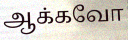
ஆக்கவோ